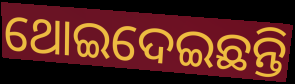
ଥୋଇଦେଇଛନ୍ତି